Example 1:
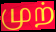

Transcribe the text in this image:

முற்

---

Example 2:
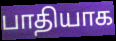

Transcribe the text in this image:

பாதியாக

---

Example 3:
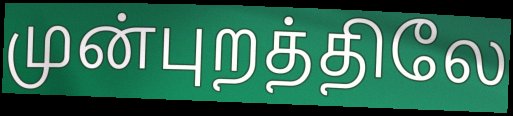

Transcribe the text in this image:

முன்புறத்திலே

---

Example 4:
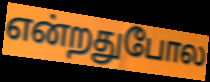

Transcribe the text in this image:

என்றதுபோல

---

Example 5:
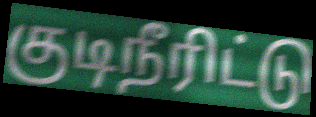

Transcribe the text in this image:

குடிநீரிட்டு